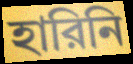
হারিনি